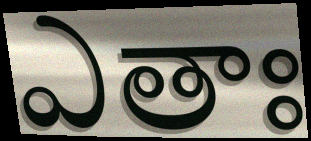
ఎతాః